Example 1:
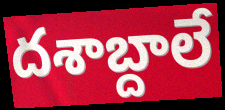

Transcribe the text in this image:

దశాబ్దాలే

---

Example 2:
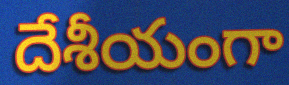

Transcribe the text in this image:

దేశీయంగా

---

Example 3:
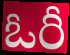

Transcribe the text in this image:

ఓరీ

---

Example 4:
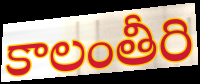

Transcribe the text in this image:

కాలంతీరి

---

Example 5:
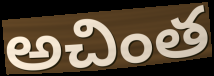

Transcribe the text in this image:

అచింత